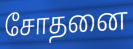
சோதனை